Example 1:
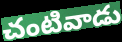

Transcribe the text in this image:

చంటివాడు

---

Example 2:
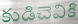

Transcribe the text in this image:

కుడిచెవికి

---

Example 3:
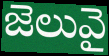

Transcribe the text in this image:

జెలువై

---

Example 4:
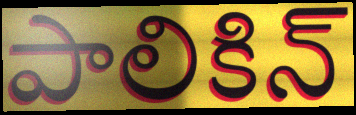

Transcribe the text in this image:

పాలికిన్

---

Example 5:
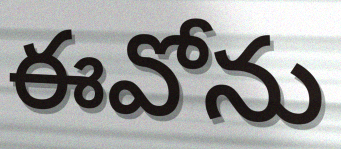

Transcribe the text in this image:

ఈవోను